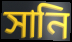
সানি